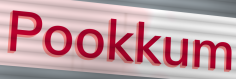
Pookkum